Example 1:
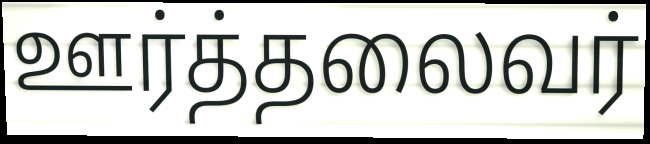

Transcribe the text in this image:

ஊர்த்தலைவர்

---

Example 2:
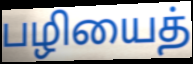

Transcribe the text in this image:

பழியைத்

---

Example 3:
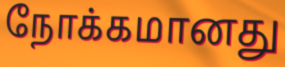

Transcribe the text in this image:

நோக்கமானது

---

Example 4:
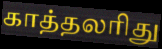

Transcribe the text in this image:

காத்தலரிது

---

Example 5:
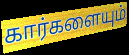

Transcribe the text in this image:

கார்களையும்